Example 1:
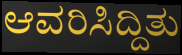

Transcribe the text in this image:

ಆವರಿಸಿದ್ದಿತು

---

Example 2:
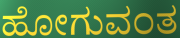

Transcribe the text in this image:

ಹೋಗುವಂತ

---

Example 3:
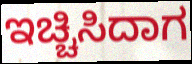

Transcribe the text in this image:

ಇಚ್ಚಿಸಿದಾಗ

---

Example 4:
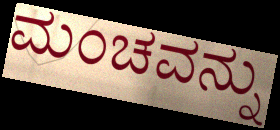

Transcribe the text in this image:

ಮಂಚವನ್ನು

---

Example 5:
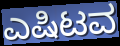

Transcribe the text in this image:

ಎಷಿಟವ